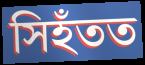
সিহঁতত